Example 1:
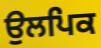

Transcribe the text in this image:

ਉਲਪਿਕ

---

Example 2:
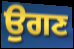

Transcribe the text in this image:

ਉਗਣ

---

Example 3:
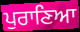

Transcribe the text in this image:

ਪੁਰਾਣਿਆ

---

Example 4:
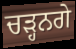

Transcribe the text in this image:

ਚੜ੍ਹਨਗੇ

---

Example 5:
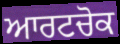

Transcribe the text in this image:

ਆਰਟਚੋਕ